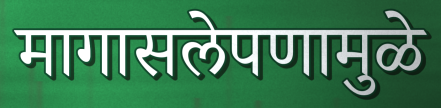
मागासलेपणामुळे